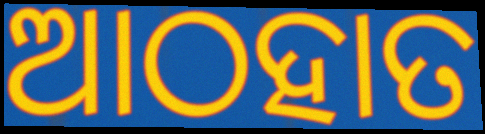
ଆଠହାତ